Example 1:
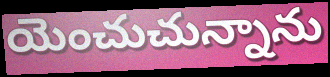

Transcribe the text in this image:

యెంచుచున్నాను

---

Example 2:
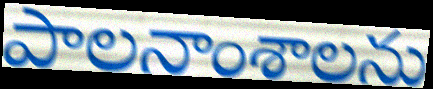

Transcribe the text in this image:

పాలనాంశాలను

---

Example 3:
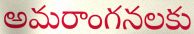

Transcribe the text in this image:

అమరాంగనలకు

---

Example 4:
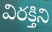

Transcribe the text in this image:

విరక్తిని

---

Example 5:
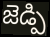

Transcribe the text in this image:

జెడ్పి